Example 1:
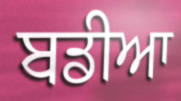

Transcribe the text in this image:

ਬਡੀਆ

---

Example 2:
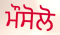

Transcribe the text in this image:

ਮੌਸੋਲੋ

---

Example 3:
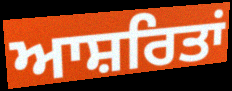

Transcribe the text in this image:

ਆਸ਼ਰਿਤਾਂ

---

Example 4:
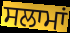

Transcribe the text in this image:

ਸਲਾਮਾਂ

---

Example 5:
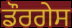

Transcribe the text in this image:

ਡੌਰਗੇਸ